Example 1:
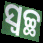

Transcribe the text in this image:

ସ୍ବଚ୍ଛ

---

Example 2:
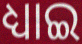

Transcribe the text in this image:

ଧ୍ୟାଇ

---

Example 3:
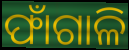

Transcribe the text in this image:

ଫାଁଗାଳି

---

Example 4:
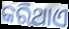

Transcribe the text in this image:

କରିଥାଏ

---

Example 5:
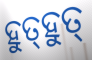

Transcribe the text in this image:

ହୁତ୍‍ହୁତ୍